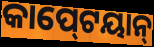
କାପ୍‍ଟେୟାନ୍